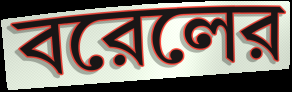
বরেলের